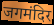
जगमंदिर